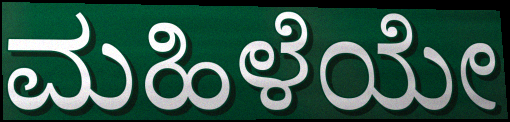
ಮಹಿಳೆಯೇ